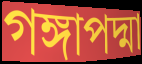
গঙ্গাপদ্মা